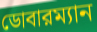
ডোবারম্যান